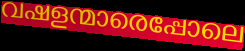
വഷളന്മാരെപ്പോലെ